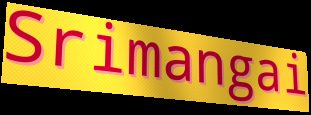
Srimangai